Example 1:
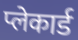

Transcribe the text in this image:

प्‍लेकार्ड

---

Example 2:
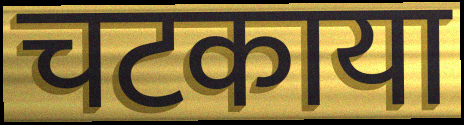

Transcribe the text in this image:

चटकाया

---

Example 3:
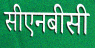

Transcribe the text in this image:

सीएनबीसी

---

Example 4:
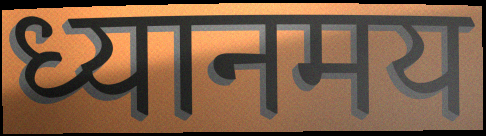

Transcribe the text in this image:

ध्यानमय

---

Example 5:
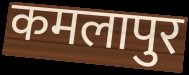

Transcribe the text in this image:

कमलापुर